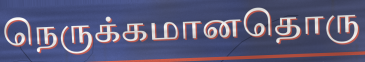
நெருக்கமானதொரு